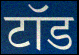
टॉड